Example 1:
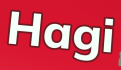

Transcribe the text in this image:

Hagi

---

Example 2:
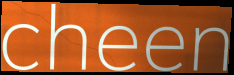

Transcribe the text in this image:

cheen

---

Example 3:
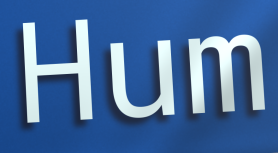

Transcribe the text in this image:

Hum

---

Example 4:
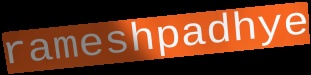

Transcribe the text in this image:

rameshpadhye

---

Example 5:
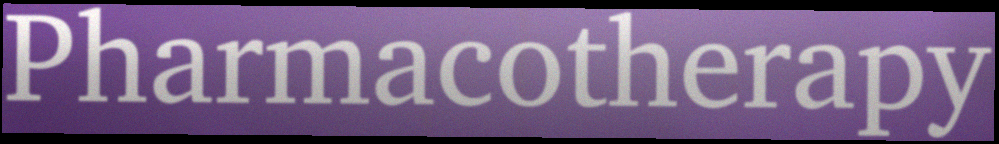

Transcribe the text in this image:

Pharmacotherapy